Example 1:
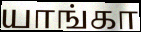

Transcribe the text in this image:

யாங்கா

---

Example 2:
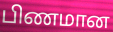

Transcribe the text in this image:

பிணமான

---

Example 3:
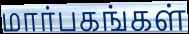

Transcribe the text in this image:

மார்பகங்கள்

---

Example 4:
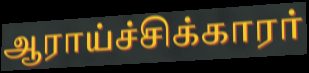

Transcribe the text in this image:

ஆராய்ச்சிக்காரர்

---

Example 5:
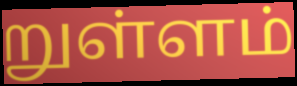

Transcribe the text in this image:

றுள்ளம்